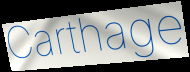
Carthage